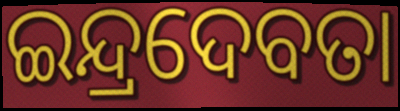
ଇନ୍ଦ୍ରଦେବତା